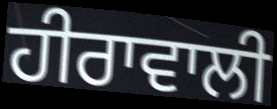
ਹੀਰਾਵਾਲੀ